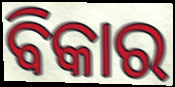
ବିକାର